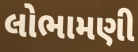
લોભામણી